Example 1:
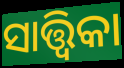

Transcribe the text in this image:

ସାତ୍ତ୍ୱିକା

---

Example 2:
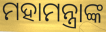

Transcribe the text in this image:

ମହାମନ୍ତ୍ରାଙ୍କ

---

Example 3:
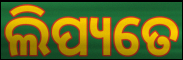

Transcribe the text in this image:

ଲିପ୍ୟତେ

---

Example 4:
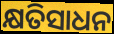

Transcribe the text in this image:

କ୍ଷତିସାଧନ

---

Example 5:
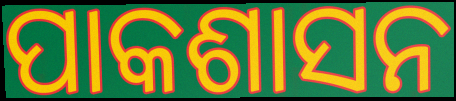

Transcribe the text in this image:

ପାକଶାସନ